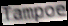
Tampoe